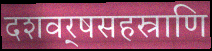
दशवर्षसहस्राणि